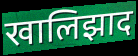
खालिझाद